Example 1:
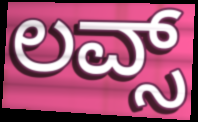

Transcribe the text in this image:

ಲವ್ಸ್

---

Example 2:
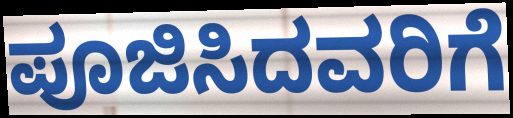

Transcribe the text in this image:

ಪೂಜಿಸಿದವರಿಗೆ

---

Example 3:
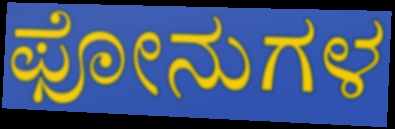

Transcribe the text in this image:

ಫೋನುಗಳ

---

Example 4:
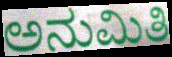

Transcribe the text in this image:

ಅನುಮಿತಿ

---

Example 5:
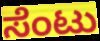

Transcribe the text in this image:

ಸೆಂಟು